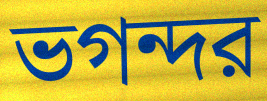
ভগন্দর